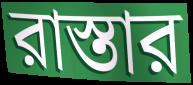
রাস্তার